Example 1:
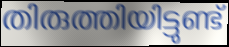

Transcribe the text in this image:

തിരുത്തിയിട്ടുണ്ട്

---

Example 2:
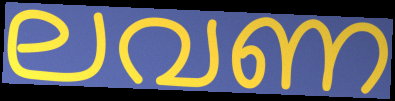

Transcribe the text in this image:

ലവണ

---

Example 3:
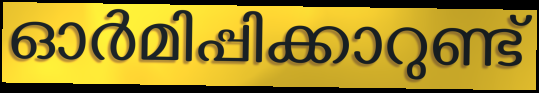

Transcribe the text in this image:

ഓർമിപ്പിക്കാറുണ്ട്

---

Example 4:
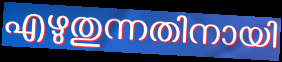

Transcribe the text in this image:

എഴുതുന്നതിനായി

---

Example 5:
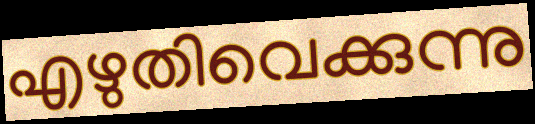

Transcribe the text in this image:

എഴുതിവെക്കുന്നു